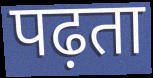
पढ़ता